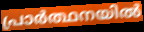
പ്രാർത്ഥനയിൽ